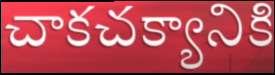
చాకచక్యానికి